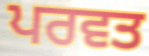
ਪਰਵਤ